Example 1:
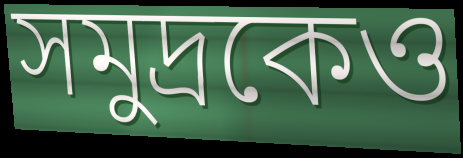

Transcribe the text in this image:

সমুদ্রকেও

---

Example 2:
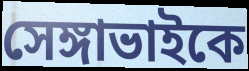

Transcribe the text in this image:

সেঙ্গাভাইকে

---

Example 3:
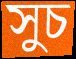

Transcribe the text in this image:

সুচ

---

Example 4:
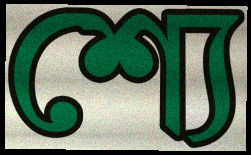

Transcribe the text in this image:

শ্যে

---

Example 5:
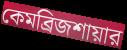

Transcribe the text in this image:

কেমব্রিজশায়ার